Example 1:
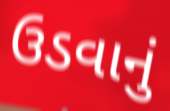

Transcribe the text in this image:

ઉડવાનું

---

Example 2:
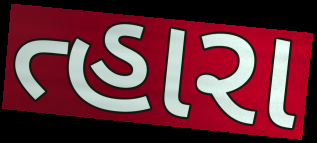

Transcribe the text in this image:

ત્હારા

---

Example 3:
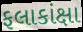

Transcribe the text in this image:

ફલાકાંક્ષા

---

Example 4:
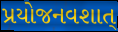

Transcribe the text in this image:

પ્રયોજનવશાત્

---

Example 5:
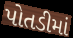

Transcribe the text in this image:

પોતડીમાં